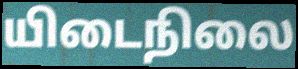
யிடைநிலை